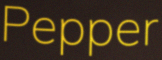
Pepper